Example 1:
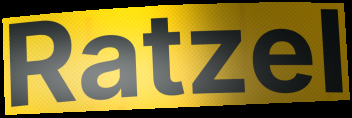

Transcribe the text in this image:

Ratzel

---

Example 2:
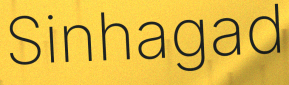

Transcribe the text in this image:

Sinhagad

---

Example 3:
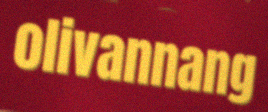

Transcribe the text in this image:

olivannang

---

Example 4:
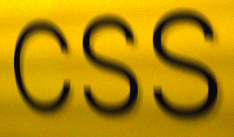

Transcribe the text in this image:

CSS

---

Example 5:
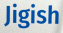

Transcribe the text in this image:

Jigish